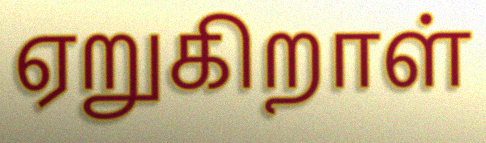
ஏறுகிறாள்